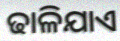
ଢାଳିଯାଏ